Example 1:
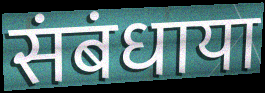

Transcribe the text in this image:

संबंधाया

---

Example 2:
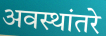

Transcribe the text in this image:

अवस्थांतरे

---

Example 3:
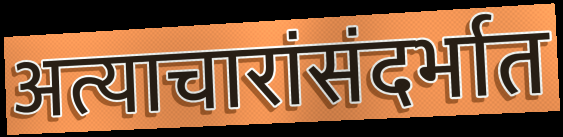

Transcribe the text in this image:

अत्याचारांसंदर्भात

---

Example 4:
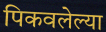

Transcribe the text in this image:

पिकवलेल्या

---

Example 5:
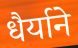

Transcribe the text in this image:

धैर्याने